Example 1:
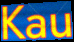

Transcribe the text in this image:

Kau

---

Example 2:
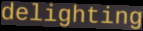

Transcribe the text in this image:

delighting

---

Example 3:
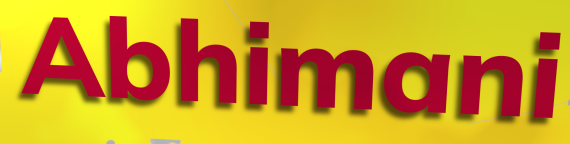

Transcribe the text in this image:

Abhimani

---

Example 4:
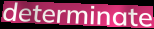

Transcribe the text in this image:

determinate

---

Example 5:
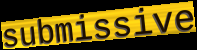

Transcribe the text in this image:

submissive